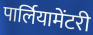
पार्लियामेंटरी